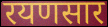
रयणसार